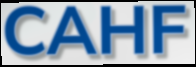
CAHF